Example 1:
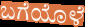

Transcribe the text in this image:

ಬಗೆಯೊಳೆ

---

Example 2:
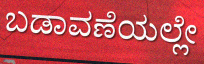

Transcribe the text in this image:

ಬಡಾವಣೆಯಲ್ಲೇ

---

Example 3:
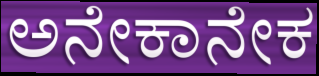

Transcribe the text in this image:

ಅನೇಕಾನೇಕ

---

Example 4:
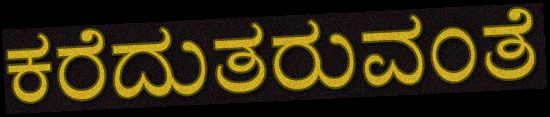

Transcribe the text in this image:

ಕರೆದುತರುವಂತೆ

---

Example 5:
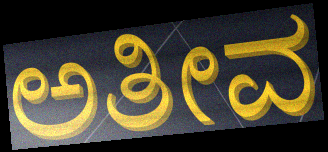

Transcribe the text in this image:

ಅತೀವ